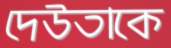
দেউতাকে